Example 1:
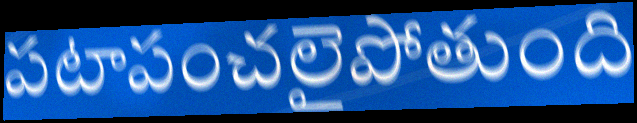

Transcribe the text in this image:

పటాపంచలైపోతుంది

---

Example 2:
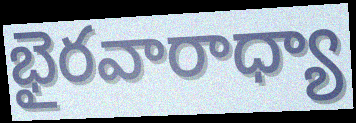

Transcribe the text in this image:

భైరవారాధ్యా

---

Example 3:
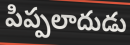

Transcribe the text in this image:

పిప్పలాదుడు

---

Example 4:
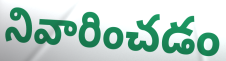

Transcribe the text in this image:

నివారించడం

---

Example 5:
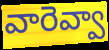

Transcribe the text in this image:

వారెవ్వా